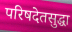
परिषदेतसुद्धा